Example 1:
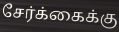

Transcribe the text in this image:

சேர்க்கைக்கு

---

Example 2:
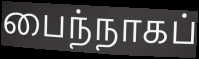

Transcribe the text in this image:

பைந்நாகப்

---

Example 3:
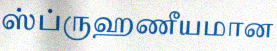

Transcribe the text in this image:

ஸ்ப்ருஹணீயமான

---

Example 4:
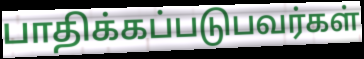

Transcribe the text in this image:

பாதிக்கப்படுபவர்கள்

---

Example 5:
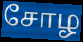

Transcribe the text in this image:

சோழ